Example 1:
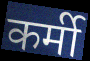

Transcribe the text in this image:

कर्मी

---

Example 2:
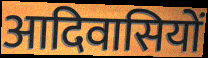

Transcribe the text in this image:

आदिवासियों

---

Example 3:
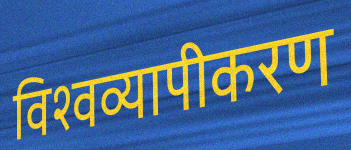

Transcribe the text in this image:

विश्वव्यापीकरण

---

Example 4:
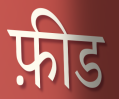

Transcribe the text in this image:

फ़ीड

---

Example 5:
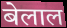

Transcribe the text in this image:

बेलाल